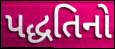
પદ્ધતિનો